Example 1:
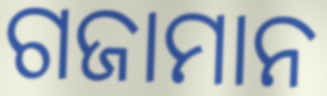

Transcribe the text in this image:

ଗଜାମାନ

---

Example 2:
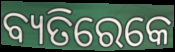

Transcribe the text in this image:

ବ୍ୟତିରେକେ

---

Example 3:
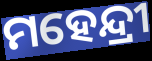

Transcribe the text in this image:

ମହେନ୍ଦ୍ରୀ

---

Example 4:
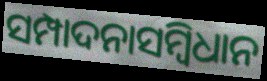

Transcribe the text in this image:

ସମ୍ପାଦନାସମ୍ବିଧାନ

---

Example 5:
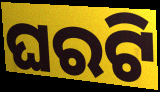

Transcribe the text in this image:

ଘରଟି